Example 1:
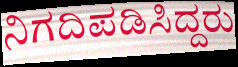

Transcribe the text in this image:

ನಿಗದಿಪಡಿಸಿದ್ದರು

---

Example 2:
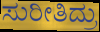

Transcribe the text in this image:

ಸುರೀತಿದ್ರು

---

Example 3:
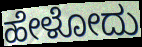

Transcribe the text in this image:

ಹೇಳೋದು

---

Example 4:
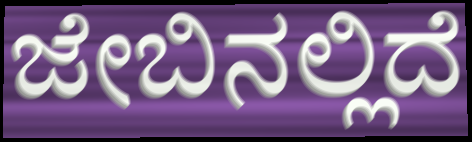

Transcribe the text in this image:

ಜೇಬಿನಲ್ಲಿದೆ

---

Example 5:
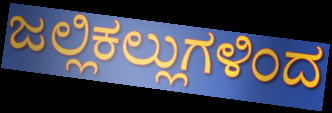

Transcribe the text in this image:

ಜಲ್ಲಿಕಲ್ಲುಗಳಿಂದ